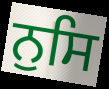
ਨੁਸਿ